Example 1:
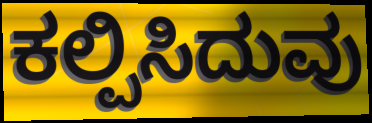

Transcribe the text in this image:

ಕಲ್ಪಿಸಿದುವು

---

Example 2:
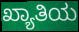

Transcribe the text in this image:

ಖ್ಯಾತಿಯ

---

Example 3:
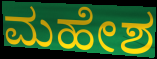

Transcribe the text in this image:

ಮಹೇಶ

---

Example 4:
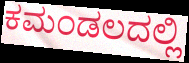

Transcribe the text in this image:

ಕಮಂಡಲದಲ್ಲಿ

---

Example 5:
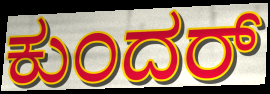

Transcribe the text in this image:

ಕುಂದರ್